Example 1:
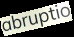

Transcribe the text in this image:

abruptio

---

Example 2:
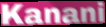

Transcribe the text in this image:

Kanani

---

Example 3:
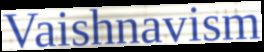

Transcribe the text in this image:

Vaishnavism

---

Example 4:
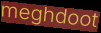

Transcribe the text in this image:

meghdoot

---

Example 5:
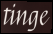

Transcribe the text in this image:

tinge